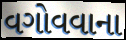
વગોવવાના